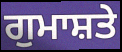
ਗੁਮਾਸ਼ਤੇ